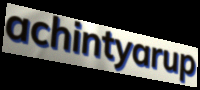
achintyarup